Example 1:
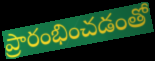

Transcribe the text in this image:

ప్రారంభించడంతో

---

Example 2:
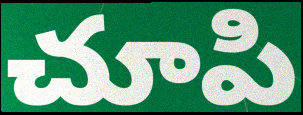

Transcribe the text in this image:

చూపి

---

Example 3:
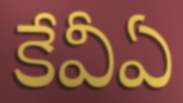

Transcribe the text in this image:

కేవీఏ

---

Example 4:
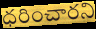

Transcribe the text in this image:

ధరించారని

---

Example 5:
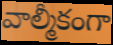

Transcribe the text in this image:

వాల్మీకంగా